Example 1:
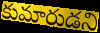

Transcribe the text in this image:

కుమారుడని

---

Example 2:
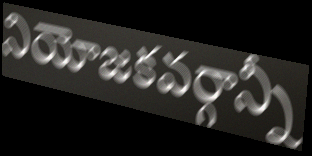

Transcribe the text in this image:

నియోజకవర్గాన్నీ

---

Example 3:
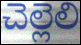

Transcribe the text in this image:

చెల్లెలి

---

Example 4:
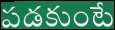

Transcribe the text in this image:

పడకుంటే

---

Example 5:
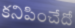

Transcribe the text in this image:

కనిపించేదో